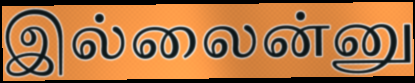
இல்லைன்னு